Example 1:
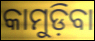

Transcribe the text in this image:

କାମୁଡ଼ିବା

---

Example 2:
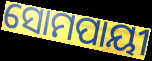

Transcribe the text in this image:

ସୋମପାୟୀ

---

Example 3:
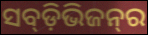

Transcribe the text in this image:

ସବ୍‍ଡ଼ିଭିଜନ୍‍ର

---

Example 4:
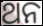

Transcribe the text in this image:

ଥନ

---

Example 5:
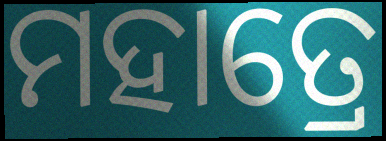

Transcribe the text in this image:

ମହାତ୍ରେ